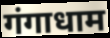
गंगाधाम